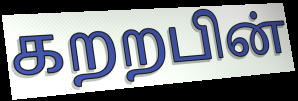
கறறபின்